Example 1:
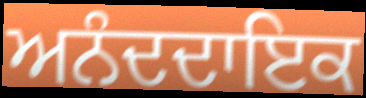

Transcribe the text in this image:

ਅਨੰਦਦਾਇਕ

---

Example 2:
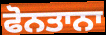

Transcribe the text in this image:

ਫੋਨਤਾਨਾ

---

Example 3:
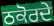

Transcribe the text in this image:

ਠਕੋਰਦੇ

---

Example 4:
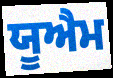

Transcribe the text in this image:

ਯੂਐਮ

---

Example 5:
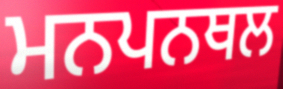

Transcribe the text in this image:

ਮਨਪਨਥਲ